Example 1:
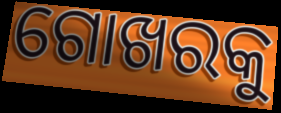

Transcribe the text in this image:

ଗୋଖରକୁ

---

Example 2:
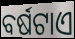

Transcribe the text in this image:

ବର୍ଷଟାଏ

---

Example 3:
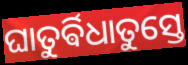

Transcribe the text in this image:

ଘାତୁର୍ଵିଧାତୁସ୍ତେ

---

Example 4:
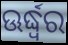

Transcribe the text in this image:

ଊର୍ଦ୍ଧ୍ଵର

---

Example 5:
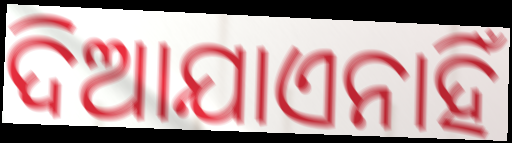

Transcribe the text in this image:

ଦିଆଯାଏନାହିଁ